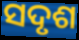
ସଦୃଶ